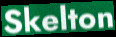
Skelton